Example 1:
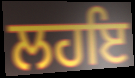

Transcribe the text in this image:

ਲਹਇ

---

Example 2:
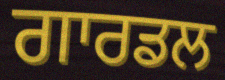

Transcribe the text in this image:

ਗਾਰਡਲ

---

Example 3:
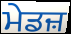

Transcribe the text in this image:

ਮੇਡਜ਼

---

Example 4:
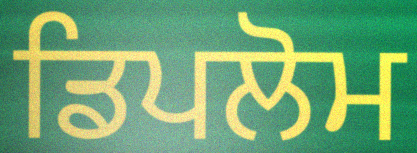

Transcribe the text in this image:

ਡਿਪਲੋਮ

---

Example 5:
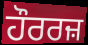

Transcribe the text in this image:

ਹੌਰਰਜ਼